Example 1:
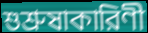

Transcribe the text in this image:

শুশ্রুষাকারিণী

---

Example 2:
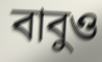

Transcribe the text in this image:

বাবুও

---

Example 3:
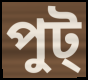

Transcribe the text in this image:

পুট্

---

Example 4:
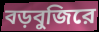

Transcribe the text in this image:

বড়বুজিরে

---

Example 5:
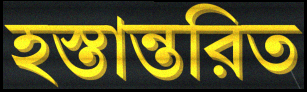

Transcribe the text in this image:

হস্তান্তরিত